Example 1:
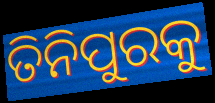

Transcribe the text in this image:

ତିନିପୁରକୁ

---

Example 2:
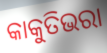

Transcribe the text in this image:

କାକୁତିଭରା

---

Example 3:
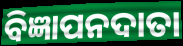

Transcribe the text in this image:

ବିଜ୍ଞାପନଦାତା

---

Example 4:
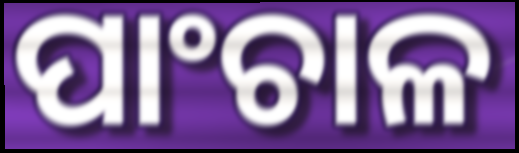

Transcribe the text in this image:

ପାଂଚାଳ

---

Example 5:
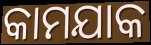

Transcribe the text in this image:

କାମଯାକ